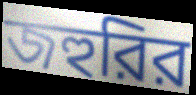
জহুরির